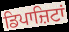
ਡਿਪਾਜ਼ਿਟਾਂ